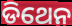
ଡିଥେନ